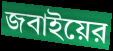
জবাইয়ের